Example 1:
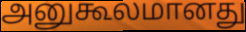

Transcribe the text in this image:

அனுகூலமானது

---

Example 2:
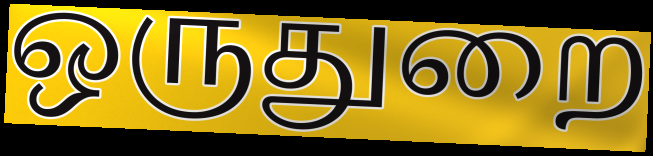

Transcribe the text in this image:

ஒருதுறை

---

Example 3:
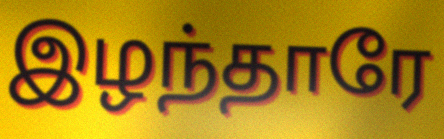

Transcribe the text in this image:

இழந்தாரே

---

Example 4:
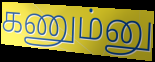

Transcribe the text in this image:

கணும்னு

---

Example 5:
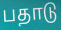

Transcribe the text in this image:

பதாடு